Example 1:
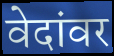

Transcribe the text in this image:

वेदांवर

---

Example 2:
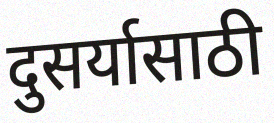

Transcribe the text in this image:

दुसर्यासाठी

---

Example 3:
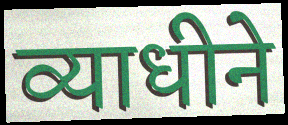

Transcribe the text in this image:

व्याधीने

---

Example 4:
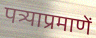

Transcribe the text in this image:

पत्र्याप्रमाणें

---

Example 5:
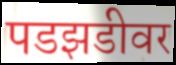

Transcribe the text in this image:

पडझडीवर